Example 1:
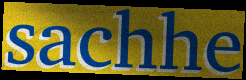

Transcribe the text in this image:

sachhe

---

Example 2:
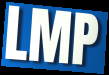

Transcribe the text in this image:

LMP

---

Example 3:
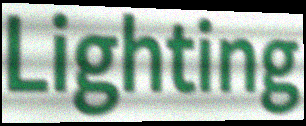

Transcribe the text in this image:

Lighting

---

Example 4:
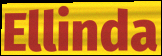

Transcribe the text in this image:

Ellinda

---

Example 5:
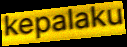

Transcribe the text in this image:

kepalaku